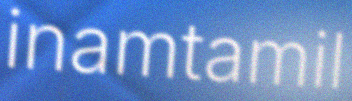
inamtamil